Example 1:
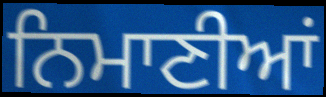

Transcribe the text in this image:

ਨਿਮਾਣੀਆਂ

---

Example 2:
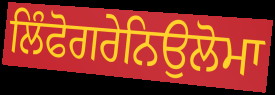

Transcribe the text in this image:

ਲਿੰਫੋਗਰੇਨਿਉਲੋਮਾ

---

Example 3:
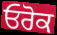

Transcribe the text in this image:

ਓਰੋਕ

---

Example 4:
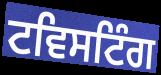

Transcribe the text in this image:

ਟਵਿਸਟਿੰਗ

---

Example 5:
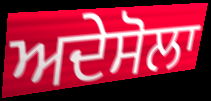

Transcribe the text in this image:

ਅਦੇਸੋਲਾ